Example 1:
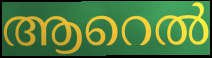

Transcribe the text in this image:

ആറെൽ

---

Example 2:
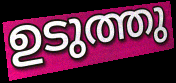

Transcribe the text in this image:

ഉടുത്തു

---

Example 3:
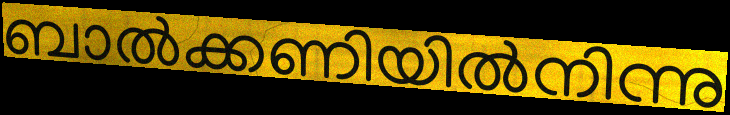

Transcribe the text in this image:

ബാൽക്കണിയിൽനിന്നു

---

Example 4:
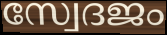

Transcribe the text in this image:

സ്വേദജം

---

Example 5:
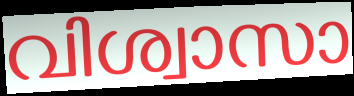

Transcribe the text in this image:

വിശ്വാസാ